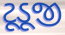
ટૂડૂજી